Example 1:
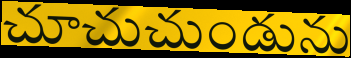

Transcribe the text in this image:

చూచుచుండును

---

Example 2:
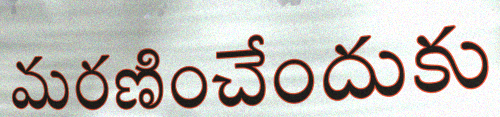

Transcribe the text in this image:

మరణించేందుకు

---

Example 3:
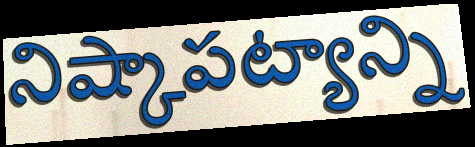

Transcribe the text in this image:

నిష్కాపట్యాన్ని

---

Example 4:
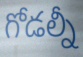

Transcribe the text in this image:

గోడల్నీ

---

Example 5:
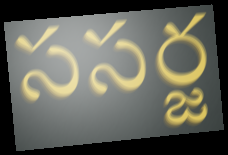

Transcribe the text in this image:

ససర్జ